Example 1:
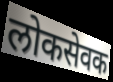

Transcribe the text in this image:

लोकसेवक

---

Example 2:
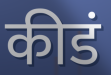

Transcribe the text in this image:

कीडं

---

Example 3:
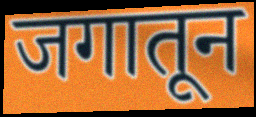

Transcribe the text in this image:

जगातून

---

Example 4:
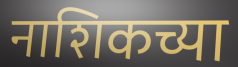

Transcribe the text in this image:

नाशिकच्या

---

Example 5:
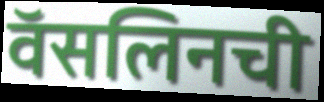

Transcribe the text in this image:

वॅसलिनची